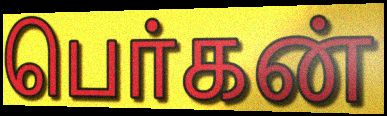
பெர்கன்